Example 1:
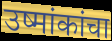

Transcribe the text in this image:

उष्मांकांचा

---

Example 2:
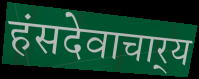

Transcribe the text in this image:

हंसदेवाचार्य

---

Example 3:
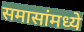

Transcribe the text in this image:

समासांमध्ये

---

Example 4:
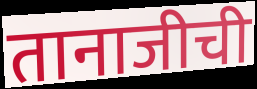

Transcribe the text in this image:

तानाजीची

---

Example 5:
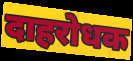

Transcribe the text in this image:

दाहरोधक